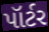
પૉર્ટર